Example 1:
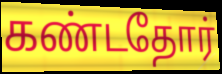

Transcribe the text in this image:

கண்டதோர்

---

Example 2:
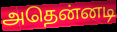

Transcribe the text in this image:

அதென்னடி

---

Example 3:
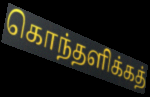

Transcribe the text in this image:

கொந்தளிக்கத்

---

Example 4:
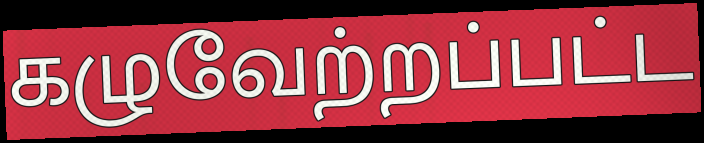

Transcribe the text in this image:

கழுவேற்றப்பட்ட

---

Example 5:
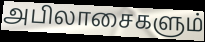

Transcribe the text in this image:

அபிலாசைகளும்